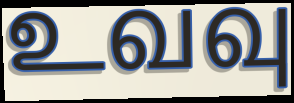
உவவு